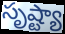
సృష్ట్యా